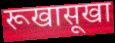
रूखासूखा